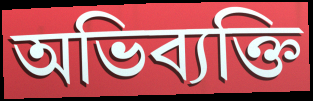
অভিব্যক্তি